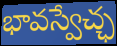
భావస్వేచ్ఛ